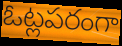
ఓట్లపరంగా